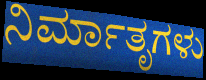
ನಿರ್ಮಾತೃಗಳು